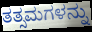
ತತ್ಸಮಗಳನ್ನು